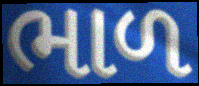
ભાળ